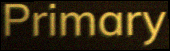
Primary